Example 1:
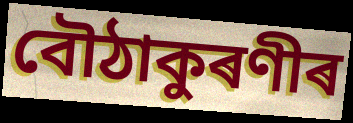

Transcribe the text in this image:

বৌঠাকুৰণীৰ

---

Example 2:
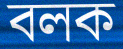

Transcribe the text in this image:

বলক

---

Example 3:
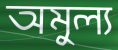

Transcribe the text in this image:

অমুল্য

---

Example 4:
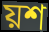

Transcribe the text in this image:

য়শ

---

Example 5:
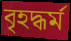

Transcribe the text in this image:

বৃহদ্ধৰ্ম